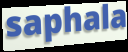
saphala